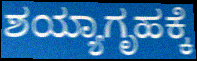
ಶಯ್ಯಾಗೃಹಕ್ಕೆ